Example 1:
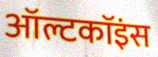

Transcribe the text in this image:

ऑल्टकॉइंस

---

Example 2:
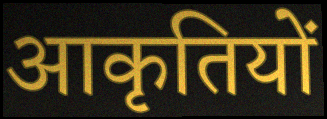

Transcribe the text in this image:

आकृतियों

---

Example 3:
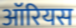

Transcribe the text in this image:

ऑरियस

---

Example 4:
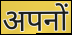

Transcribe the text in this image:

अपनों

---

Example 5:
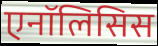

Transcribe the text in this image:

एनॉलिसिस